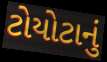
ટોયોટાનું